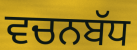
ਵਚਨਬੱਧ